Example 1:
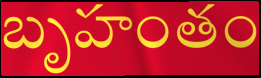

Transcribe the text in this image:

బృహంతం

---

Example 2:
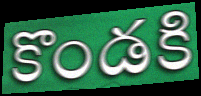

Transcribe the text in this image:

కొండకి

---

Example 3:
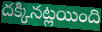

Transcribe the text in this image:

దక్కినట్లయింది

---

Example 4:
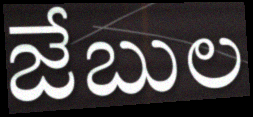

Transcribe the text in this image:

జేబుల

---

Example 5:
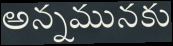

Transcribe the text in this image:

అన్నమునకు